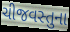
ચીજવસ્તુના